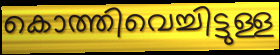
കൊത്തിവെച്ചിട്ടുള്ള